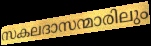
സകലദാസന്മാരിലും